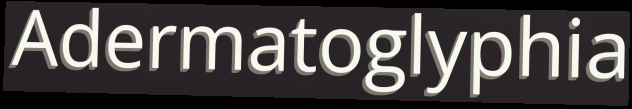
Adermatoglyphia